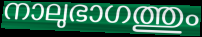
നാലുഭാഗത്തും